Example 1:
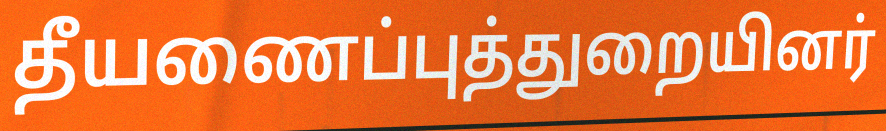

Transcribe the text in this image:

தீயணைப்புத்துறையினர்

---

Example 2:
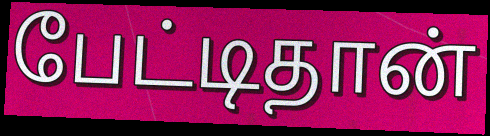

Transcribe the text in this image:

பேட்டிதான்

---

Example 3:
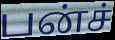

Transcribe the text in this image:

பன்ச்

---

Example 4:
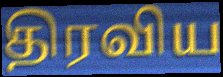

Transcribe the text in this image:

திரவிய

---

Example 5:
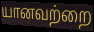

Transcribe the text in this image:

யானவற்றை